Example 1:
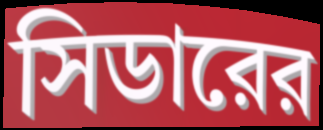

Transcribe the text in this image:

সিডারের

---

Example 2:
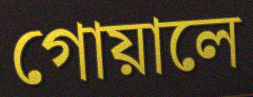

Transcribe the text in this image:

গোয়ালে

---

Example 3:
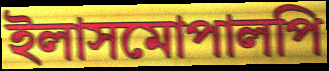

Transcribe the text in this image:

ইলাসমোপালপি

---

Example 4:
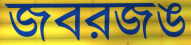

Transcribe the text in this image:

জবরজঙ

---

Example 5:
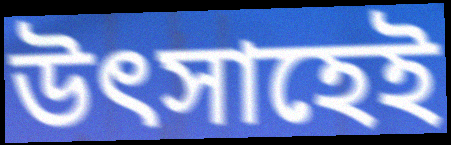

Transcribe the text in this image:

উৎসাহেই